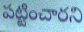
పట్టించారని